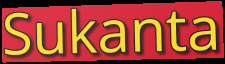
Sukanta